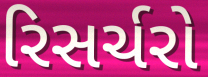
રિસર્ચરો